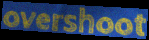
overshoot